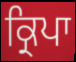
ਕ੍ਰਿਪਾ